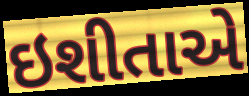
ઇશીતાએ